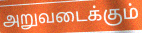
அறுவடைக்கும்